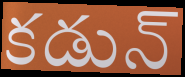
కడున్